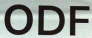
ODF